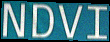
NDVI